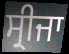
ਸ੍ਰੀਜਾ